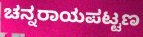
ಚನ್ನರಾಯಪಟ್ಟಣ